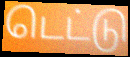
டெட்டு